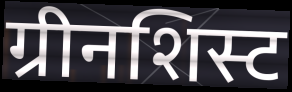
ग्रीनशिस्ट